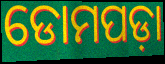
ଡୋମପଡ଼ା